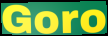
Goro